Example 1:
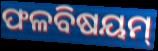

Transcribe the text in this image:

ଫଳବିଷୟମ୍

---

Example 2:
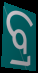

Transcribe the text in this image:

ବ୍ର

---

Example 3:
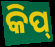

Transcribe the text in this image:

କିପ୍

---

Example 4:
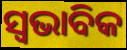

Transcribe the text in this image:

ସ୍ଵଭାବିକ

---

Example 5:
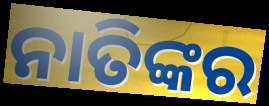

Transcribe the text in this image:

ନାତିଙ୍କର